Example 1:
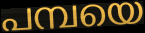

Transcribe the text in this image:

പമ്പയെ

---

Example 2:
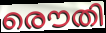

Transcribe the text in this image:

രൌതി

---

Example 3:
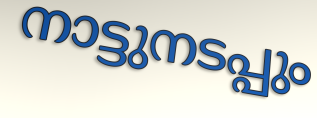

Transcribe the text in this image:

നാട്ടുനടപ്പും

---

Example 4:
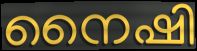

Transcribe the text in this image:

നൈഷി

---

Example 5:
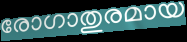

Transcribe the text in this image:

രോഗാതുരമായ